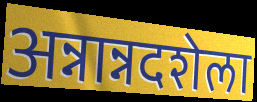
अन्नान्नदशेला